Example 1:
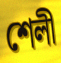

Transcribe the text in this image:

শেলী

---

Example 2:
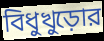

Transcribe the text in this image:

বিধুখুড়োর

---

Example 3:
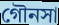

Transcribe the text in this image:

গৌনসা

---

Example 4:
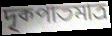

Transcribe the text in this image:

দৃক্পাতমাত্র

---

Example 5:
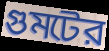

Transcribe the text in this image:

গুমটের